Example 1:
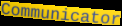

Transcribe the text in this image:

Communicator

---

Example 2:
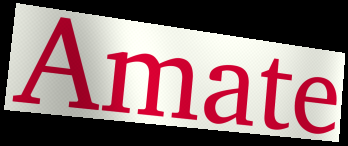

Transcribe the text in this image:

Amate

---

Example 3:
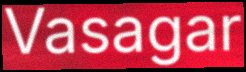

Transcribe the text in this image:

Vasagar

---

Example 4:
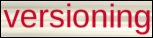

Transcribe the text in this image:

versioning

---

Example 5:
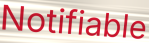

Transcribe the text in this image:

Notifiable